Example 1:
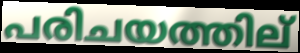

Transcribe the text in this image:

പരിചയത്തില്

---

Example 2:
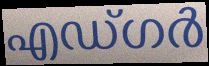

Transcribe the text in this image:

എഡ്ഗർ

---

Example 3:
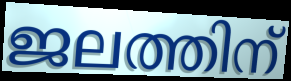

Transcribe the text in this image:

ജലത്തിന്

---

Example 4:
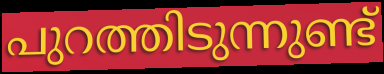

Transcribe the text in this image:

പുറത്തിടുന്നുണ്ട്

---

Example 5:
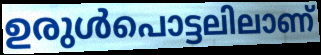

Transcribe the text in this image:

ഉരുൾപൊട്ടലിലാണ്